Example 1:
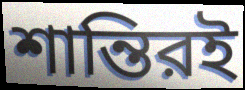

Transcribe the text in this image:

শান্তিরই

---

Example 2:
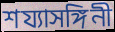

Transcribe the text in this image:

শয্যাসঙ্গিনী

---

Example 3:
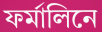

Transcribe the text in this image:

ফর্মালিনে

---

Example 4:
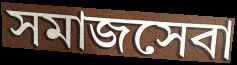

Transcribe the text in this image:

সমাজসেবা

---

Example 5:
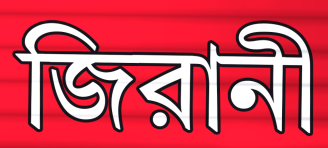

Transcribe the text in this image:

জিরানী